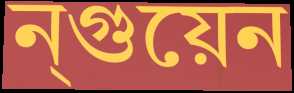
ন্গুয়েন